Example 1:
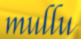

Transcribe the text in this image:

mullu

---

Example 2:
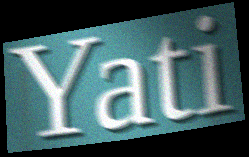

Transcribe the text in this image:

Yati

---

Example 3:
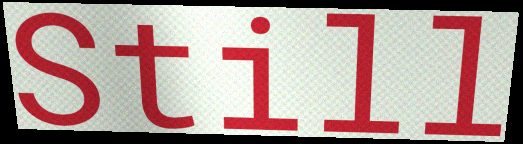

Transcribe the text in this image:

Still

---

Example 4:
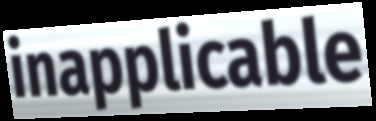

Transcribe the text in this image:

inapplicable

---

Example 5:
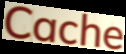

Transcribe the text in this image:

Cache